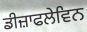
ਡੀਜ਼ਾਫਲੇਵਿਨ